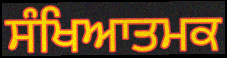
ਸੰਖਿਆਤਮਕ